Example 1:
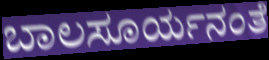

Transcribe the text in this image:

ಬಾಲಸೂರ್ಯನಂತೆ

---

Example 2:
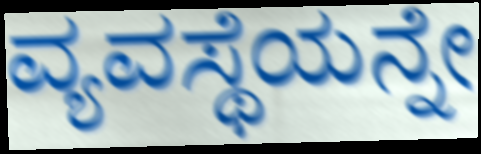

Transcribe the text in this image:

ವ್ಯವಸ್ಥೆಯನ್ನೇ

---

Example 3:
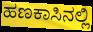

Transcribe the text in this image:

ಹಣಕಾಸಿನಲ್ಲಿ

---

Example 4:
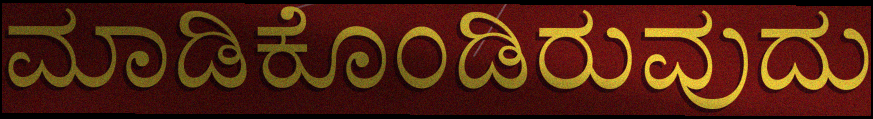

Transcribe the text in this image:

ಮಾಡಿಕೊಂಡಿರುವುದು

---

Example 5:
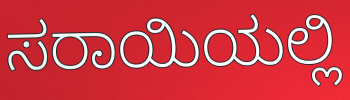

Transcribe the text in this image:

ಸರಾಯಿಯಲ್ಲಿ